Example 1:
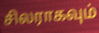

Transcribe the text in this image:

சிலராகவும்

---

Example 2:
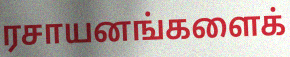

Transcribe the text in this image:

ரசாயனங்களைக்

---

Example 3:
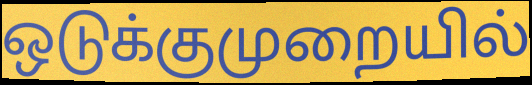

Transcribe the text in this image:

ஒடுக்குமுறையில்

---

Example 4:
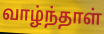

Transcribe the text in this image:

வாழ்ந்தாள்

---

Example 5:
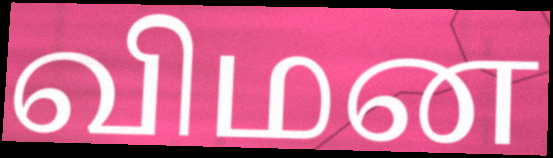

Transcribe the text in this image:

விமன